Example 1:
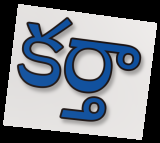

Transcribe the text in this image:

కర్తా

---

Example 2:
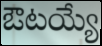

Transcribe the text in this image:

ఔటయ్యే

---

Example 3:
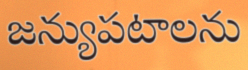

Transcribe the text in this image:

జన్యుపటాలను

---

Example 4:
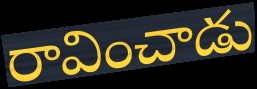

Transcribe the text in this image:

రావించాడు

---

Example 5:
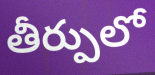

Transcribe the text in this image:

తీర్పులో